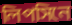
লিপসিনে